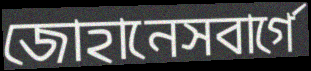
জোহানেসবার্গে